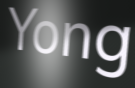
Yong